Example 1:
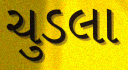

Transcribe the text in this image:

ચુડલા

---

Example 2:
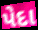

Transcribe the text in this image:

પેદા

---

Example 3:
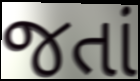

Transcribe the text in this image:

જતાં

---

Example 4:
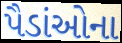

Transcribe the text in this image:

પૈડાંઓના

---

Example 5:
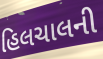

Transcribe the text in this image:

હિલચાલની